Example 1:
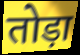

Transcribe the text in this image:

तोड़ा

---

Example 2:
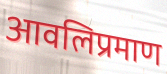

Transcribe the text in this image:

आवलिप्रमाण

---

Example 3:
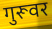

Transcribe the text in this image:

गुरूवर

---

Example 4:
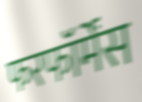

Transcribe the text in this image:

फरफॉर्मेंस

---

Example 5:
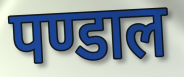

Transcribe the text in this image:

पण्डाल